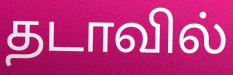
தடாவில்